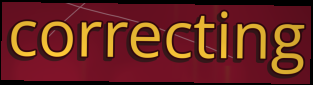
correcting